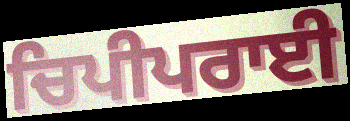
ਚਿਪੀਪਰਾਈ